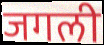
जगली